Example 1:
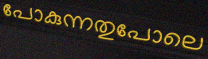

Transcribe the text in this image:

പോകുന്നതുപോലെ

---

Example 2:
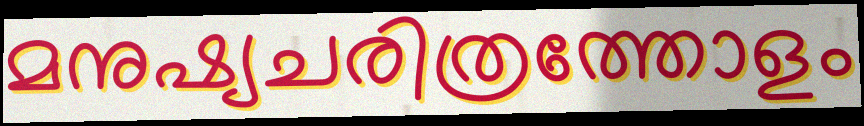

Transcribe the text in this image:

മനുഷ്യചരിത്രത്തോളം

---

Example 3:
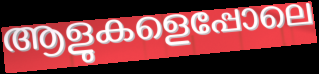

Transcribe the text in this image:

ആളുകളെപ്പോലെ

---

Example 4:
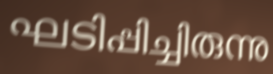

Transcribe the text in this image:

ഘടിപ്പിച്ചിരുന്നു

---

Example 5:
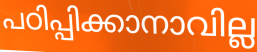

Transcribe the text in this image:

പഠിപ്പിക്കാനാവില്ല